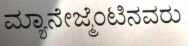
ಮ್ಯಾನೇಜ್ಮೆಂಟಿನವರು